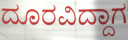
ದೂರವಿದ್ದಾಗ